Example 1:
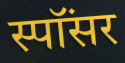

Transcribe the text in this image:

स्पॉंसर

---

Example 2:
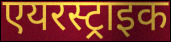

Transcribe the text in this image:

एयरस्ट्राइक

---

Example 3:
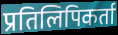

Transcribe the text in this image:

प्रतिलिपिकर्ता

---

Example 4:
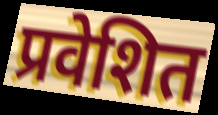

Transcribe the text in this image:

प्रवेशित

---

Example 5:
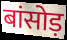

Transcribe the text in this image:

बांसोड़